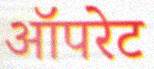
ऑपरेट